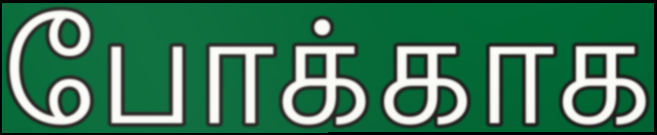
போக்காக